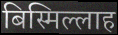
बिस्मिल्‍लाह